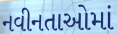
નવીનતાઓમાં